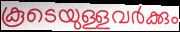
കൂടെയുള്ളവർക്കും